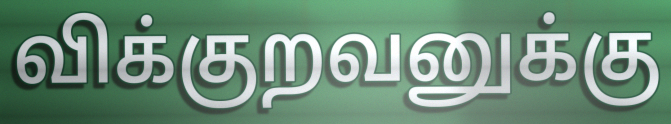
விக்குறவனுக்கு